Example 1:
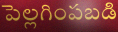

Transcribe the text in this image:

పెల్లగింపబడి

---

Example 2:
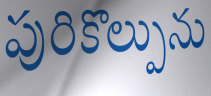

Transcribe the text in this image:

పురికొల్పును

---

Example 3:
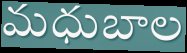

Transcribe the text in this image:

మధుబాల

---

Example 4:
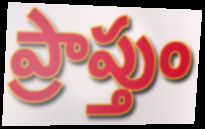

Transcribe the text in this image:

ప్రాప్తుం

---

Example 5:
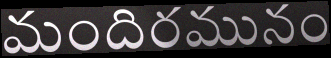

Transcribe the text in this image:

మందిరమునం